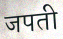
जपती